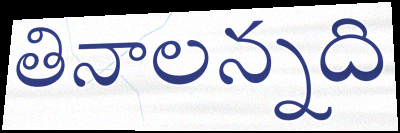
తినాలన్నది